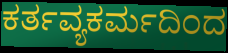
ಕರ್ತವ್ಯಕರ್ಮದಿಂದ